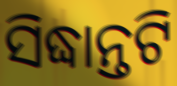
ସିଦ୍ଧାନ୍ତଟି